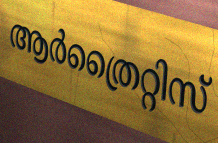
ആർത്രൈറ്റിസ്